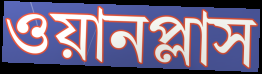
ওয়ানপ্লাস